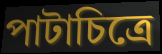
পাটাচিত্রে